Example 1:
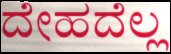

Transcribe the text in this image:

ದೇಹದೆಲ್ಲ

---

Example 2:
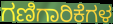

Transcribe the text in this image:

ಗಣಿಗಾರಿಕೆಗಳ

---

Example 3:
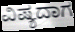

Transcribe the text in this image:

ವಿಷ್ಯದಾಗ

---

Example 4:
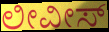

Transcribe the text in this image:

ಲೀವೀಸ್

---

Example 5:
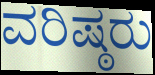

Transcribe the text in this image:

ವರಿಷ್ಠರು